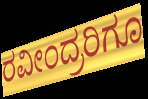
ರವೀಂದ್ರರಿಗೂ